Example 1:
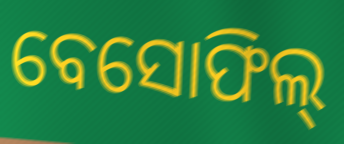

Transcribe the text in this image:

ବେସୋଫିଲ୍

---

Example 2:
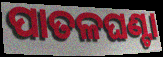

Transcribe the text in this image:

ପାତଳଘଣ୍ଟା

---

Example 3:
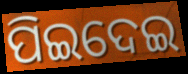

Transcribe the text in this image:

ପିଇଦେଇ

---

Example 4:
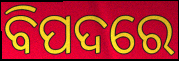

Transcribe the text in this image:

ବିପଦରେ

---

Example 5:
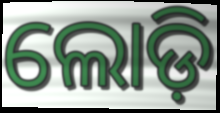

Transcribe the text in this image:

ଲୋଡ଼ି